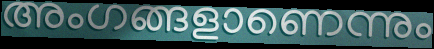
അംഗങ്ങളാണെന്നും